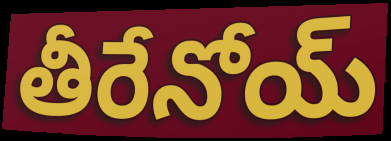
తీరేనోయ్